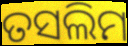
ତସଲିମ